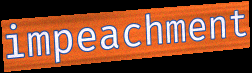
impeachment